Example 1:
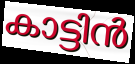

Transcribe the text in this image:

കാട്ടിൻ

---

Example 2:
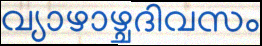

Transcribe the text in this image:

വ്യാഴാഴ്ചദിവസം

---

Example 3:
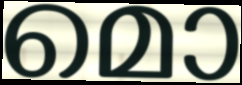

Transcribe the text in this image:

മൊ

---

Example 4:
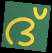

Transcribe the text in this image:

ദ്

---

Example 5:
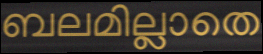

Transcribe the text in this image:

ബലമില്ലാതെ